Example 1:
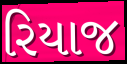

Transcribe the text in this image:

રિયાજ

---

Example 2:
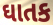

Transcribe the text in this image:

ઘાતક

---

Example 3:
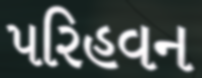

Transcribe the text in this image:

પરિહવન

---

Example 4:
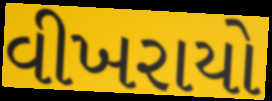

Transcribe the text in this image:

વીખરાયો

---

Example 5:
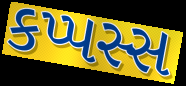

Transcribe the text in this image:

કપ્પસ્સ